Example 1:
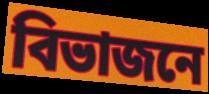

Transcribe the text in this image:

বিভাজনে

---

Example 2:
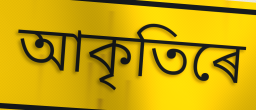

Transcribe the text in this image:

আকৃতিৰে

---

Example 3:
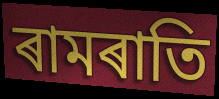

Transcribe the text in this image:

ৰামৰাতি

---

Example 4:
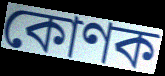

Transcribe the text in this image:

কোণক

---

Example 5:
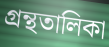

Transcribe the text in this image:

গ্ৰন্থতালিকা